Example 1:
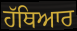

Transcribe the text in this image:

ਹੱਥਿਆਰ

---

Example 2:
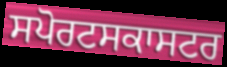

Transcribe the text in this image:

ਸਪੋਰਟਸਕਾਸਟਰ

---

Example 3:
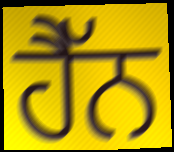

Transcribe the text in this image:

ਹੈੱਨ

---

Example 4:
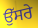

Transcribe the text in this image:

ਉੱਸਰੇ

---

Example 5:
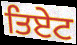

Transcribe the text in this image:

ਤਿਏਟ